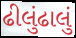
ઢીલુંઢાલું